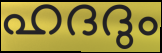
ഹദദും